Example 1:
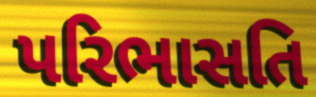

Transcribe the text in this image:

પરિભાસતિ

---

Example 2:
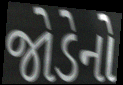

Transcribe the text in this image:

જોડેનો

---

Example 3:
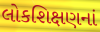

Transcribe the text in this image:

લોકશિક્ષણનાં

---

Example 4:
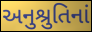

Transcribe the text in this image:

અનુશ્રુતિનાં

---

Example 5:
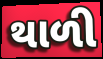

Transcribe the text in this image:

થાળી